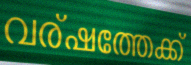
വര്ഷത്തേക്ക്